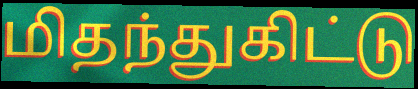
மிதந்துகிட்டு